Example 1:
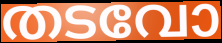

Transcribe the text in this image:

തടവോ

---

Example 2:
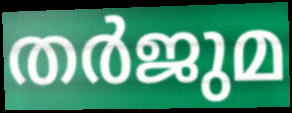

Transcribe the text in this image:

തർജുമ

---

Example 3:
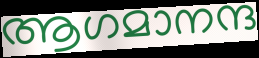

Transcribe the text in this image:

ആഗമാനന്ദ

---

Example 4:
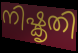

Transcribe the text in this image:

നിഷ്കൃതി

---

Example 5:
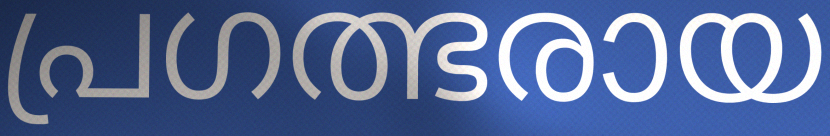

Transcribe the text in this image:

പ്രഗത്ഭരായ